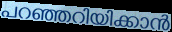
പറഞ്ഞറിയിക്കാൻ